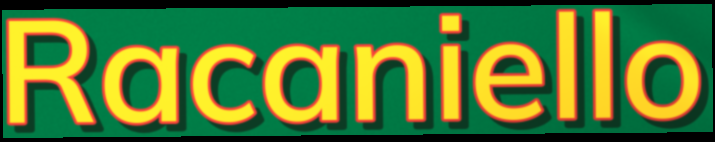
Racaniello